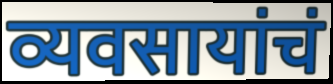
व्यवसायांचं